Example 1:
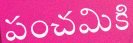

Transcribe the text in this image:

పంచమికి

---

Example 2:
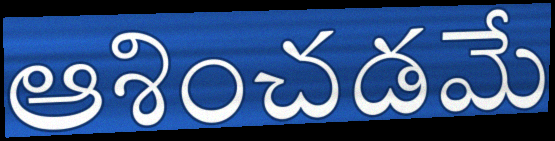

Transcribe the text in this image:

ఆశించడమే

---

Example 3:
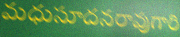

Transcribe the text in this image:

మధుసూదనరావుగారి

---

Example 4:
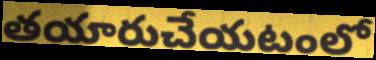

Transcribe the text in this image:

తయారుచేయటంలో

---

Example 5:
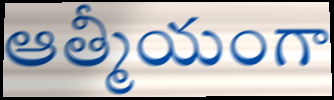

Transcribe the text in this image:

ఆత్మీయంగా